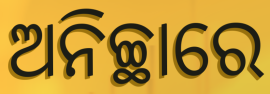
ଅନିଚ୍ଛାରେ